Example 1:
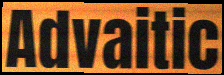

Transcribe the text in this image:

Advaitic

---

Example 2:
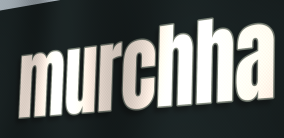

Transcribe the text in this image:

murchha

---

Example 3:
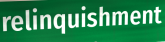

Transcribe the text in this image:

relinquishment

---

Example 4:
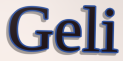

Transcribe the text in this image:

Geli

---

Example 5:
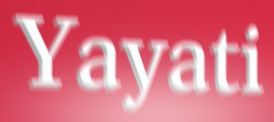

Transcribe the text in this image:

Yayati